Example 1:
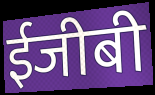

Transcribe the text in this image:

ईजीबी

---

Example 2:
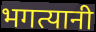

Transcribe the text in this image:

भगत्यानी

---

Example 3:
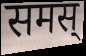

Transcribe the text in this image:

समस्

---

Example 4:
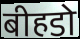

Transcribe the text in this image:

बीहडो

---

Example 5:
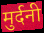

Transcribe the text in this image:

मुर्दनी